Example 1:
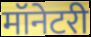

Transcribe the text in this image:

मॉनेटरी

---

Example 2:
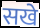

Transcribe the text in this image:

सखे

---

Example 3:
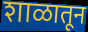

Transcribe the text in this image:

शाळातून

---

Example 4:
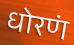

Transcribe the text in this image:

धोरणं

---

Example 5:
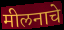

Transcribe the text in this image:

मीलनाचे